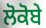
ਲੋਕੋਬੇ